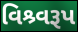
વિશ્ર્વરૂપ